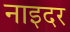
नाइदर